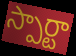
స్పార్టా